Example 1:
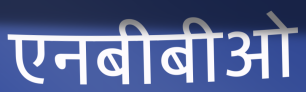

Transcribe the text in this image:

एनबीबीओ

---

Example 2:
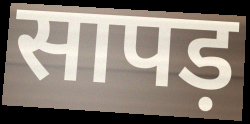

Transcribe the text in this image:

सापड़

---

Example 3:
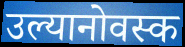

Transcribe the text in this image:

उल्यानोवस्क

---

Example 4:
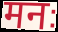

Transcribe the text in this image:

मनः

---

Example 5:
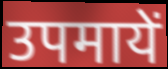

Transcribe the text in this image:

उपमायें